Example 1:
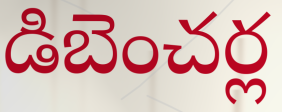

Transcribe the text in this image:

డిబెంచర్ల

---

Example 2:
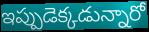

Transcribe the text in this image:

ఇప్పుడెక్కడున్నారో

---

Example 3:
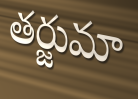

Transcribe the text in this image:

తర్జుమా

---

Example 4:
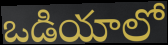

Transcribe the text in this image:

ఒడియాలో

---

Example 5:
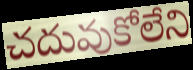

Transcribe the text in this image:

చదువుకోలేని